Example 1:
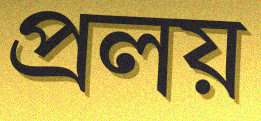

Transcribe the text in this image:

প্রলয়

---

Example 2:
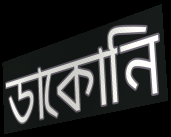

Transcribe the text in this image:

ডাকোনি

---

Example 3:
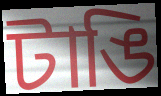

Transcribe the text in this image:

টাঙি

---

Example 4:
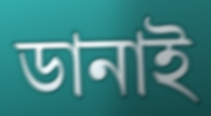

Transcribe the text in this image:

ডানাই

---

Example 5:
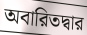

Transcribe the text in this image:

অবারিতদ্বার